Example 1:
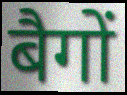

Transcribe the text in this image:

बैगों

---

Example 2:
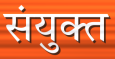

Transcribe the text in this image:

संयुक्त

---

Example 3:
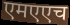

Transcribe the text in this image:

एमएएच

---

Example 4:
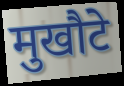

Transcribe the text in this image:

मुखौटे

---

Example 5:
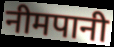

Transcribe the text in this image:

नीमपानी